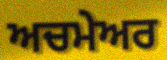
ਅਚਮੇਅਰ